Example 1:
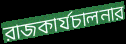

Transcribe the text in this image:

রাজকার্যচালনার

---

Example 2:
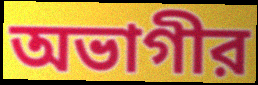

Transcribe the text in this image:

অভাগীর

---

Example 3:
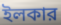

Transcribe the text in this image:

ইলকার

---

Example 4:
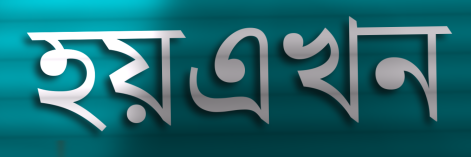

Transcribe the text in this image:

হয়এখন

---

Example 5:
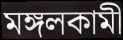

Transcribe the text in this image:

মঙ্গলকামী